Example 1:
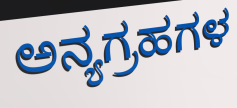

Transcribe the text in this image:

ಅನ್ಯಗ್ರಹಗಳ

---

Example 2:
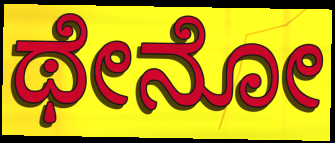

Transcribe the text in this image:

ಥೇನೋ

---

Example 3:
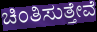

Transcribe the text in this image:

ಚಿಂತಿಸುತ್ತೇವೆ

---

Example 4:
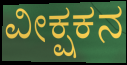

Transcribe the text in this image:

ವೀಕ್ಷಕನ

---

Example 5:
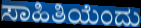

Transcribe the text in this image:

ಸಾಹಿತಿಯೆಂದು